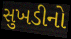
સુખડીનો